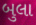
બુલા